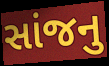
સાંજનુ